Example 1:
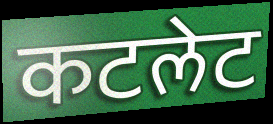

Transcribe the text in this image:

कटलेट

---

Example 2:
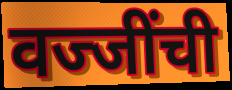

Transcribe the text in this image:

वज्जींची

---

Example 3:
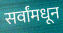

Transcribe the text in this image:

सर्वांमधून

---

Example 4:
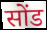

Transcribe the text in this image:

सोंड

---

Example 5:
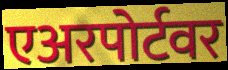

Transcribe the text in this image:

एअरपोर्टवर